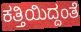
ಕತ್ತಿಯಿದ್ದಂತೆ